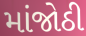
માંજોઠી